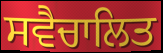
ਸਵੈਚਾਲਿਤ